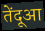
तेंदूआ